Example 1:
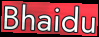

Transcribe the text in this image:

Bhaidu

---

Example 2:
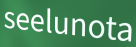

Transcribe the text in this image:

seelunota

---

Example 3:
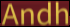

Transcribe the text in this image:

Andh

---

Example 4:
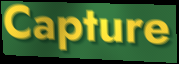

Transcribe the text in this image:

Capture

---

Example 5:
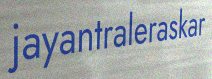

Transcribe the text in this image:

jayantraleraskar